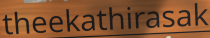
theekathirasak